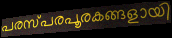
പരസ്പരപൂരകങ്ങളായി